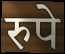
रुपे